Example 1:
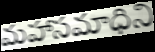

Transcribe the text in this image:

మహాసమాధిని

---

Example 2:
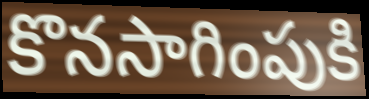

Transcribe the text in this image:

కొనసాగింపుకి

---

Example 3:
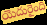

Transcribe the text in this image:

యెదురైంది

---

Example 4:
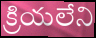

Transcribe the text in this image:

క్రియలేని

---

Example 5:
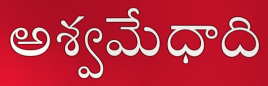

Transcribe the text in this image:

అశ్వమేధాది